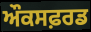
ਔਕਸਫ਼ਰਡ